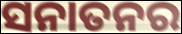
ସନାତନର